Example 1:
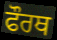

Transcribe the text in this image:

ਫੌਰਥ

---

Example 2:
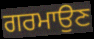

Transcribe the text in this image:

ਗਰਮਾਉਣ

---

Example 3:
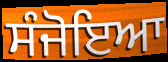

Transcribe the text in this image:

ਸੰਜੋਇਆ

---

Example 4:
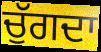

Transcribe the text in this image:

ਚੁੱਗਦਾ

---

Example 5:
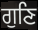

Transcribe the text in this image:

ਗੁਣਿ